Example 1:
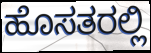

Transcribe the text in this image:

ಹೊಸತರಲ್ಲಿ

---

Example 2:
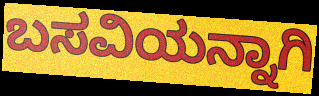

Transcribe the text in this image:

ಬಸವಿಯನ್ನಾಗಿ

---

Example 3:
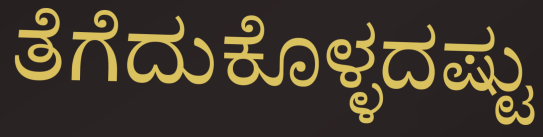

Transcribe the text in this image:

ತೆಗೆದುಕೊಳ್ಳದಷ್ಟು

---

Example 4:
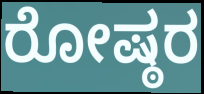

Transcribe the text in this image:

ರೋಷ್ಠರ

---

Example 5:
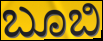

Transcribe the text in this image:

ಬೂಬಿ